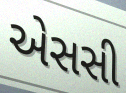
એસસી